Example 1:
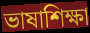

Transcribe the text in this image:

ভাষাশিক্ষা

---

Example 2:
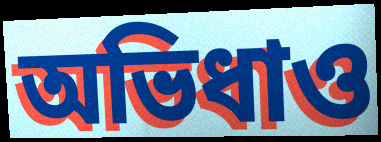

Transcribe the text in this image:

অভিধাও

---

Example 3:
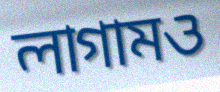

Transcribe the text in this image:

লাগামও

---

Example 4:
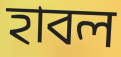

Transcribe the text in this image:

হাবল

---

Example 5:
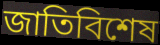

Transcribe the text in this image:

জাতিবিশেষ